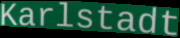
Karlstadt